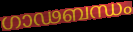
ഗാഢബന്ധം